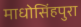
माधोसिंहपुरा